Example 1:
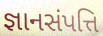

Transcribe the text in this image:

જ્ઞાનસંપત્તિ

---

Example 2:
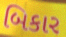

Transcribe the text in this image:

બિકાર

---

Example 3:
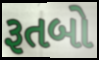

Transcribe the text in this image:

રૂતબો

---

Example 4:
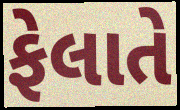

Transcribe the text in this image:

ફેલાતે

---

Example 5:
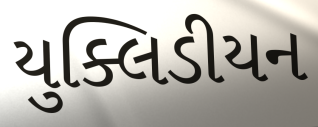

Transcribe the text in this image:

યુક્લિડીયન